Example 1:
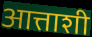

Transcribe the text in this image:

आत्ताशी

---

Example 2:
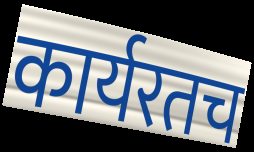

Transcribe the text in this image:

कार्यरतच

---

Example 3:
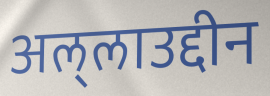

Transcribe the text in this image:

अल्लाउद्दीन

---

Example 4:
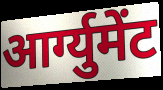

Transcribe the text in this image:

आर्ग्युमेंट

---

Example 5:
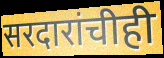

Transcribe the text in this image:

सरदारांचीही